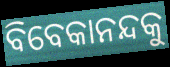
ବିବେକାନନ୍ଦକୁ